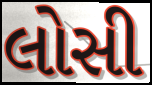
લોસી